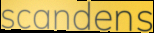
scandens